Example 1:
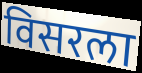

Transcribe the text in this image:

विसरला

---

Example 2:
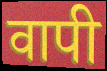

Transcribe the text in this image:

वापी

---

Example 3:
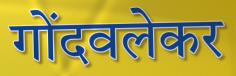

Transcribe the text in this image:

गोंदवलेकर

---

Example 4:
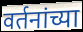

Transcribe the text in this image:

वर्तनांच्या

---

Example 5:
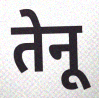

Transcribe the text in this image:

तेनू